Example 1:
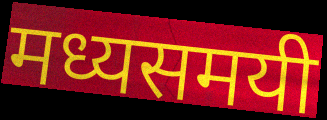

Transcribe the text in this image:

मध्यसमयी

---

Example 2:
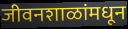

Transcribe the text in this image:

जीवनशाळांमधून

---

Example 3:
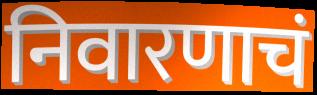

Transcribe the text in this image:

निवारणाचं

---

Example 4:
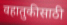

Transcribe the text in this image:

वहातुकीसाठी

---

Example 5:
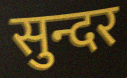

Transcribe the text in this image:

सुन्दर